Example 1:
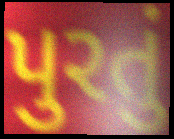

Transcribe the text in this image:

પુરતું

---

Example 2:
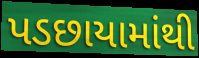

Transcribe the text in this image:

પડછાયામાંથી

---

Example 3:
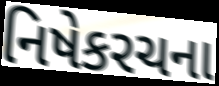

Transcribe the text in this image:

નિષેકરચના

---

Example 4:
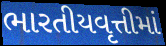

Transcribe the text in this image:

ભારતીયવૃત્તીમાં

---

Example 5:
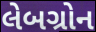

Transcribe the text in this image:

લેબગ્રોન